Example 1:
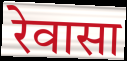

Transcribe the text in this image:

रेवासा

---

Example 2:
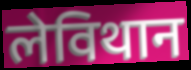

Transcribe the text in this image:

लेविथान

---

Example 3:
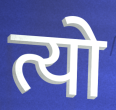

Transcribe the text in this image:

त्यो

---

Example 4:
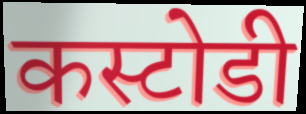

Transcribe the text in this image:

कस्टोडी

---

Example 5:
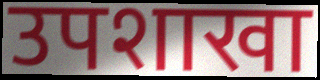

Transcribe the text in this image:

उपशाखा